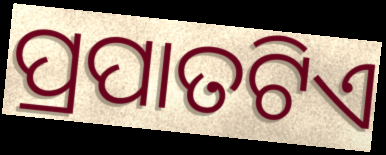
ପ୍ରପାତଟିଏ